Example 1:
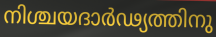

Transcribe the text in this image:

നിശ്ചയദാർഢ്യത്തിനു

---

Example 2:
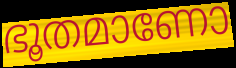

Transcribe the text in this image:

ഭൂതമാണോ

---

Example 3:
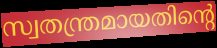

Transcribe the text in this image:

സ്വതന്ത്രമായതിന്റെ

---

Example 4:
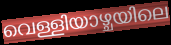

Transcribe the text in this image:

വെള്ളിയാഴ്ചയിലെ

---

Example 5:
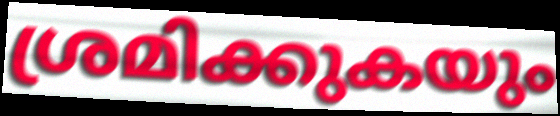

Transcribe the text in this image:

ശ്രമിക്കുകയും